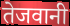
तेजवानी